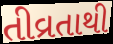
તીવ્રતાથી